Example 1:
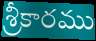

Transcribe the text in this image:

శ్రీకారము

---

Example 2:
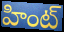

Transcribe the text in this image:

హింట్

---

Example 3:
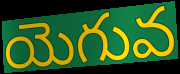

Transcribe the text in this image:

యెగువ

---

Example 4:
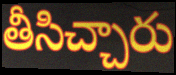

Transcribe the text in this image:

తీసిచ్చారు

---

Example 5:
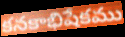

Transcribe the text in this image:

కనకాభిషేకము